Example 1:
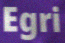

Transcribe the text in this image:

Egri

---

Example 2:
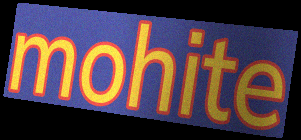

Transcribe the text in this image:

mohite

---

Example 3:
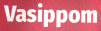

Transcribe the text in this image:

Vasippom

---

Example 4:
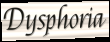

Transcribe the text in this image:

Dysphoria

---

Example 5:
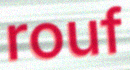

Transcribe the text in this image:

rouf